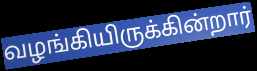
வழங்கியிருக்கின்றார்